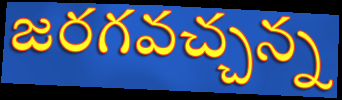
జరగవచ్చన్న